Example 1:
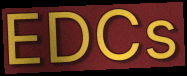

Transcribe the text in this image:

EDCs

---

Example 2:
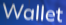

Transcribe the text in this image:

Wallet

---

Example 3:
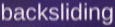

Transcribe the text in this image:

backsliding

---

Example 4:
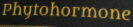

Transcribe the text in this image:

Phytohormone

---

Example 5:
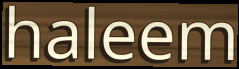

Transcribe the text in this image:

haleem